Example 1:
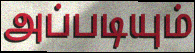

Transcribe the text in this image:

அப்படியும்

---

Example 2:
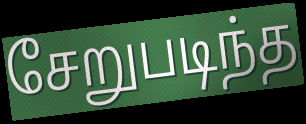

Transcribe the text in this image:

சேறுபடிந்த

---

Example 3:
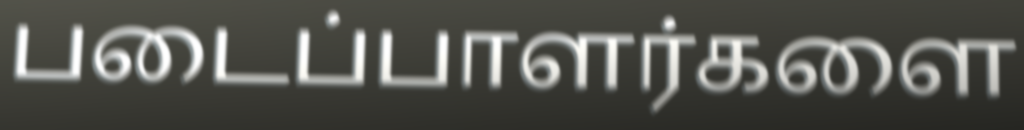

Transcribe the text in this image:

படைப்பாளர்களை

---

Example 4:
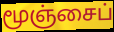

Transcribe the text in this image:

மூஞ்சைப்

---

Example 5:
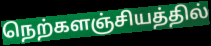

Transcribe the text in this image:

நெற்களஞ்சியத்தில்